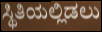
ಸ್ಥಿತಿಯಲ್ಲಿಡಲು